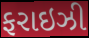
ફરાઇઝી